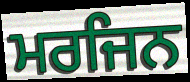
ਮਰਜਿਨ